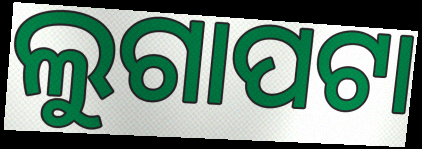
ଲୁଗାପଟା